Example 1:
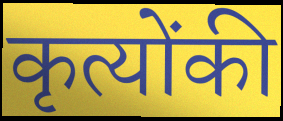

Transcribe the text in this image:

कृत्योंकी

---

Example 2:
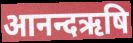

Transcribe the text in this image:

आनन्दऋषि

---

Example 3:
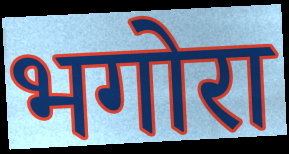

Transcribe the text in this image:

भगोरा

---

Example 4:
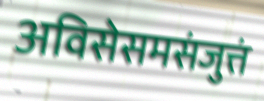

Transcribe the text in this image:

अविसेसमसंजुत्तं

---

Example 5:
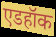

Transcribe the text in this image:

एडहॉक